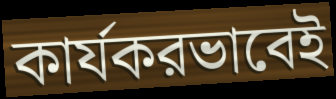
কার্যকরভাবেই